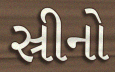
સ્રીનો